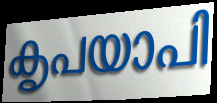
കൃപയാപി